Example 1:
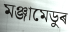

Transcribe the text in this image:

মঞ্জামেডুৰ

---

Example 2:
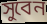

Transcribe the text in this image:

সুবেন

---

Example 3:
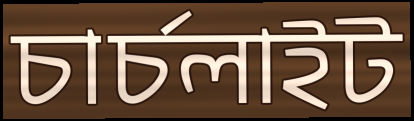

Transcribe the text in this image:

চাৰ্চলাইট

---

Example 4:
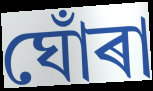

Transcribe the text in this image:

ঘোঁৰা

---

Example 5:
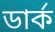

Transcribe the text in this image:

ডাৰ্ক